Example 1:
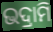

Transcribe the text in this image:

ଭଦ୍ରାମି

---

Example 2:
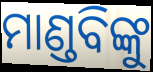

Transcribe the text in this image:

ମାଣ୍ଡବିଙ୍କୁ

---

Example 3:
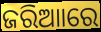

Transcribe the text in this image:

ଜରିଆାରେ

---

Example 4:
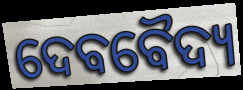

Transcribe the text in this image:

ଦେବବୈଦ୍ୟ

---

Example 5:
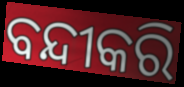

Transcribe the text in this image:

ବନ୍ଦୀକରି